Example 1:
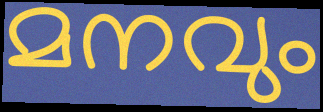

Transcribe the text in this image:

മനവും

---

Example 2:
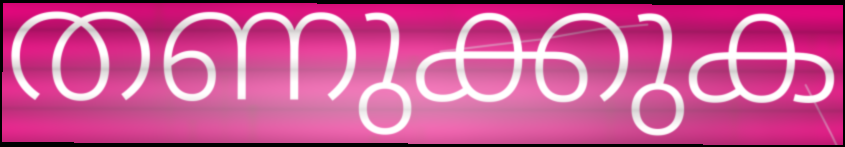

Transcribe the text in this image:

തണുക്കുക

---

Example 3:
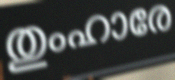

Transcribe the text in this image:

തുംഹാരേ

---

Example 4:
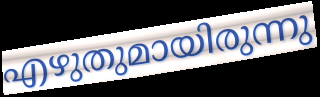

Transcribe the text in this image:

എഴുതുമായിരുന്നു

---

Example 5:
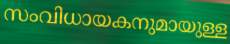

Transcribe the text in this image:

സംവിധായകനുമായുള്ള